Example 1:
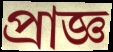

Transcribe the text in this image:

প্রাজ্ঞ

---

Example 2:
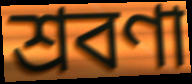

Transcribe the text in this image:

শ্রবণা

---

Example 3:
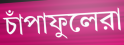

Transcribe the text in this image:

চাঁপাফুলেরা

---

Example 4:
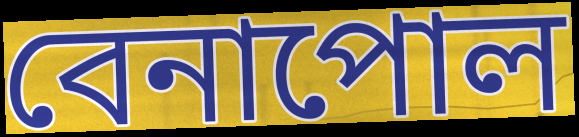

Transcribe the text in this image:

বেনাপোল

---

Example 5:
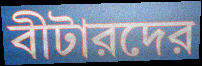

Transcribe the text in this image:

বীটারদের